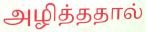
அழித்ததால்